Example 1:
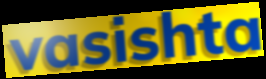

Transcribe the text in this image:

vasishta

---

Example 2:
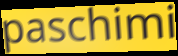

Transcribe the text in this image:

paschimi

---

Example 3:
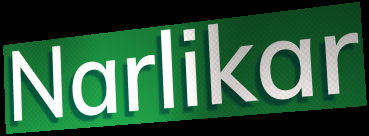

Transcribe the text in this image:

Narlikar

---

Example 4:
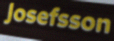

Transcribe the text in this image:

Josefsson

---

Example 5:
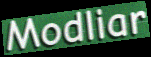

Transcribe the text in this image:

Modliar